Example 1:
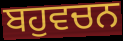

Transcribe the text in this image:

ਬਹੁਵਚਨ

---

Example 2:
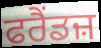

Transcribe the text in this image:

ਫਰੈਂਡਜ਼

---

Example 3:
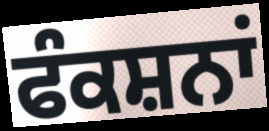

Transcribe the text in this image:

ਫੰਕਸ਼ਨਾਂ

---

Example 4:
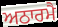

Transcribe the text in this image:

ਅਠਾਰਮੈ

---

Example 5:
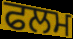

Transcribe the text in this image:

ਫਲਮ